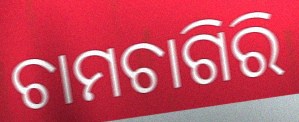
ଚାମଚାଗିରି